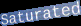
Saturated